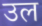
उल